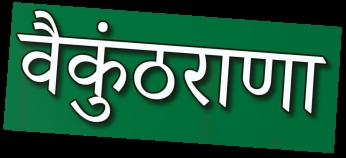
वैकुंठराणा